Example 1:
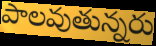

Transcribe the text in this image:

పాలవుతున్నరు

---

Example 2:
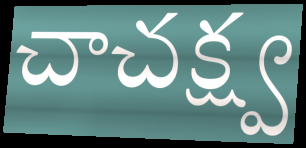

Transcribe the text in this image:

చాచక్ష్వ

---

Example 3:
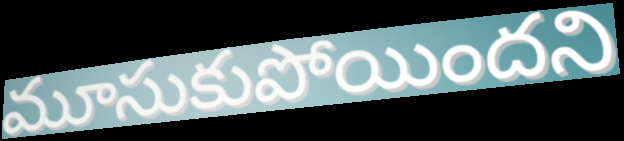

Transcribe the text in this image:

మూసుకుపోయిందని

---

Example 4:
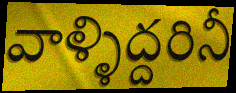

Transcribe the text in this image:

వాళ్ళిద్దరినీ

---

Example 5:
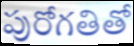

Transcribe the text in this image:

పురోగతితో